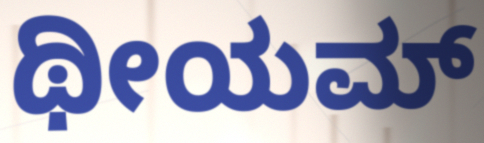
ಥೀಯಮ್